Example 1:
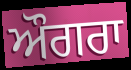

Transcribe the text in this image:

ਔਗਰਾ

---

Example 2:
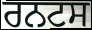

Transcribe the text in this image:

ਰਨਟਸ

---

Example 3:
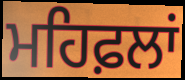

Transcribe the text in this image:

ਮਹਿਫ਼ਲਾਂ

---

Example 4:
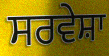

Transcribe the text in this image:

ਸਰਵੇਸ਼ਾ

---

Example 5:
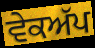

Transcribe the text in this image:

ਵੇਕਅੱਪ